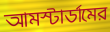
আমস্টার্ডামের